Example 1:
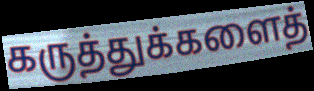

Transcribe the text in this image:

கருத்துக்களைத்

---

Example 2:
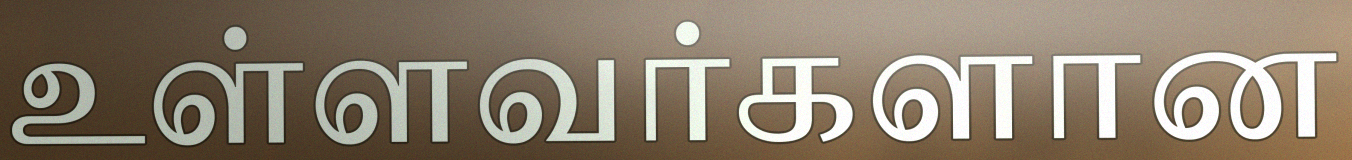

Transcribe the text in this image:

உள்ளவர்களான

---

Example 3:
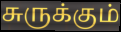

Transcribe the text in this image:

சுருக்கும்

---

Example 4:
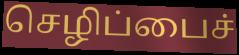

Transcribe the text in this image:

செழிப்பைச்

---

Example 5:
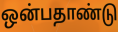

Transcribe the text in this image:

ஒன்பதாண்டு